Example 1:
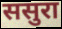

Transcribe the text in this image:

ससुरा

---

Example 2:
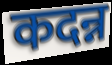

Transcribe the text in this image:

कदन्न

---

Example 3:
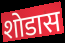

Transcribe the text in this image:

शोडास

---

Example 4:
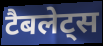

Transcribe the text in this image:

टैबलेट्स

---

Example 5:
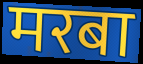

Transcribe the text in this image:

मरबा